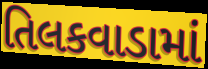
તિલકવાડામાં